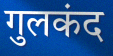
गुलकंद